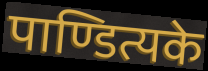
पाण्डित्यके